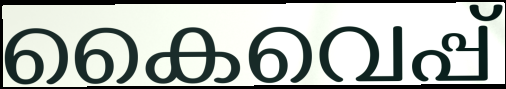
കൈവെപ്പ്